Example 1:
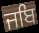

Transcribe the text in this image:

ਜਬਿ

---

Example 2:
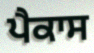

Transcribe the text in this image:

ਪੈਕਾਸ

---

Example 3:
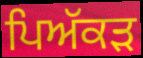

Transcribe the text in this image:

ਪਿਅੱਕੜ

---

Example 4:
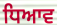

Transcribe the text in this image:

ਧਿਆਵ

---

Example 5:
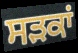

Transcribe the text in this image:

ਸਡ਼ਕਾਂ